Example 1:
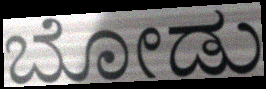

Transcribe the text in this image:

ಬೋಡು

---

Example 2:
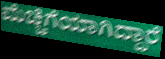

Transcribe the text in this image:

ಮೆಚ್ಚಿಗೆಯಾಗಿದ್ದಾರೆ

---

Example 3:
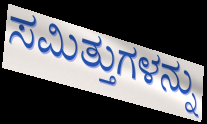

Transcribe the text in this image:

ಸಮಿತ್ತುಗಳನ್ನು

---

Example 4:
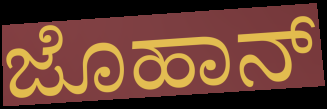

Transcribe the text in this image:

ಜೊಹಾನ್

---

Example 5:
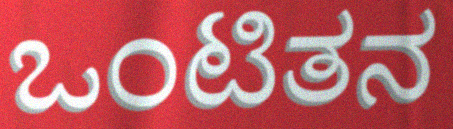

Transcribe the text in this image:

ಒಂಟಿತನ